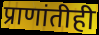
प्राणांतीही